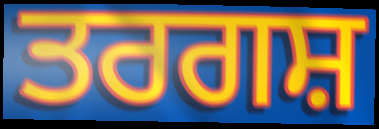
ਤਰਗਸ਼